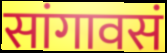
सांगावसं